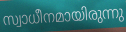
സ്വാധീനമായിരുന്നു